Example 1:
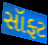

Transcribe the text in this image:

સૉફ્ટ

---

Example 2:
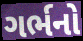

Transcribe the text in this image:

ગર્ભનો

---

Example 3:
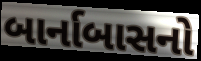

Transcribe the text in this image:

બાર્નાબાસનો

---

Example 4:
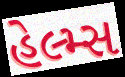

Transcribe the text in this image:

હેલ્મ્સ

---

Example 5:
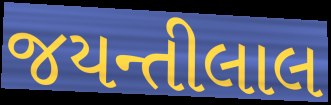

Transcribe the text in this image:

જયન્તીલાલ